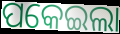
ପକେଇଲା